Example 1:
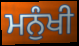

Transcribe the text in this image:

ਮਨੁੰਖੀ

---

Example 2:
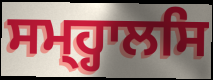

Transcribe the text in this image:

ਸਮ੍ਹ੍ਹਾਲਸਿ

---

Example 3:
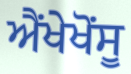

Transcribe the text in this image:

ਐਂਖੇਖੋਂਸੂ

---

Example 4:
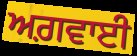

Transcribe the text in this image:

ਅਗ਼ਵਾਈ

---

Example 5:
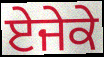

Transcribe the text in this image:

ਏਜੇਕੇ